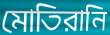
মোতিরানি